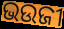
ଭଉଜୀ